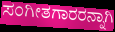
ಸಂಗೀತಗಾರರನ್ನಾಗಿ